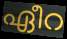
ഏീറ